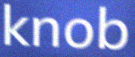
knob